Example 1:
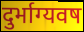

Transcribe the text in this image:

दुर्भाग्यवष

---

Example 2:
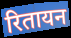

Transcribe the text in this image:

रितायन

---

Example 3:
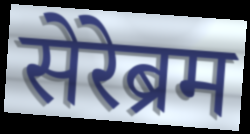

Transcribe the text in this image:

सेरेब्रम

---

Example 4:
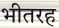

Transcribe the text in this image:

भीतरह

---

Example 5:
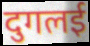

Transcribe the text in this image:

दुगलई